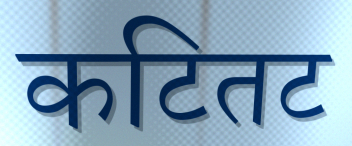
कटितट